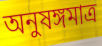
অনুষঙ্গমাত্র